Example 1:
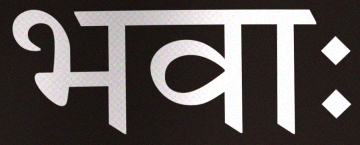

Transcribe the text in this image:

भवाः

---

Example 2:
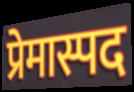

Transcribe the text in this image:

प्रेमास्पद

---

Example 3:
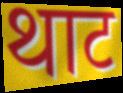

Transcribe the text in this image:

थाट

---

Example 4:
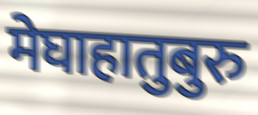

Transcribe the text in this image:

मेघाहातुबुरु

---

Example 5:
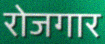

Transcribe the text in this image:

रोजगार